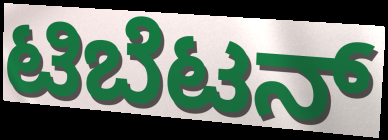
ಟಿಬೆಟನ್